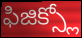
ఫిజిక్స్లో